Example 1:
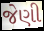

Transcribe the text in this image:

જેણી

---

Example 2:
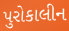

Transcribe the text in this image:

પુરોકાલીન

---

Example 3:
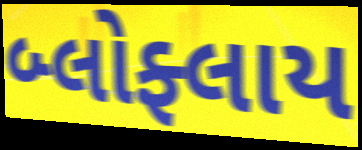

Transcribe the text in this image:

બ્લોફ્લાય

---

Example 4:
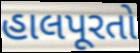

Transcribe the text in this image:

હાલપૂરતો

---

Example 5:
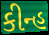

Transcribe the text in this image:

કીન્હ